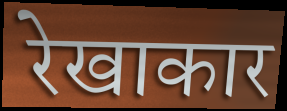
रेखाकार